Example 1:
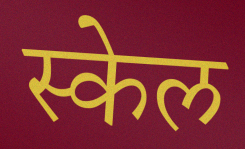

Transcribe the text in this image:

स्केल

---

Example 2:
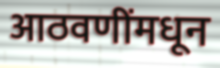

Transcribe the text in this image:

आठवणींमधून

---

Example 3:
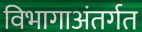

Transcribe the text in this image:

विभागाअंतर्गत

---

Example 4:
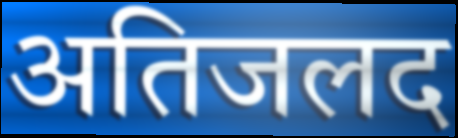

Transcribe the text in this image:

अतिजलद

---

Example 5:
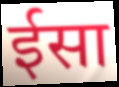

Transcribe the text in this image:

ईसा